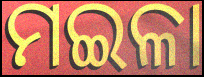
ମଇଳା